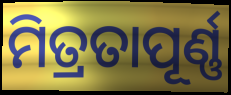
ମିତ୍ରତାପୂର୍ଣ୍ଣ